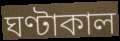
ঘণ্টাকাল